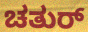
ಚತುರ್